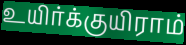
உயிர்க்குயிராம்